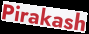
Pirakash